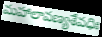
మహాలావణ్యశేవధిః